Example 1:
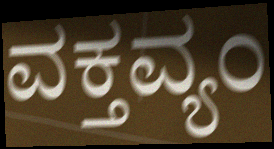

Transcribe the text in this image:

ವಕ್ತವ್ಯಂ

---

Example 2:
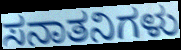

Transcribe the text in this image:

ಸನಾತನಿಗಳು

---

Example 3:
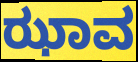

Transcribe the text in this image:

ಝಾವ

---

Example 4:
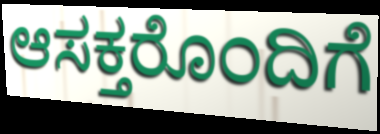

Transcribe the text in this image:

ಆಸಕ್ತರೊಂದಿಗೆ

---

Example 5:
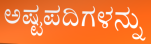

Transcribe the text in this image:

ಅಷ್ಟಪದಿಗಳನ್ನು